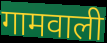
गामवाली